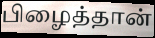
பிழைத்தான்